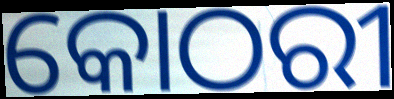
କୋଠରୀ